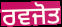
ਰਵਜੋਤ